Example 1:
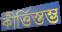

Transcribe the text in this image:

কীর্ত্তিস্তম্ভ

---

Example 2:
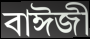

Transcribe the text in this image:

বাঈজী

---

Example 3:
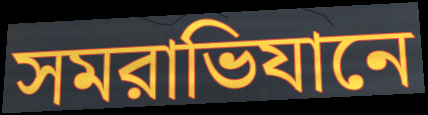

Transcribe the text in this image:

সমরাভিযানে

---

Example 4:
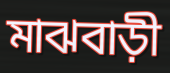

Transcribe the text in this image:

মাঝবাড়ী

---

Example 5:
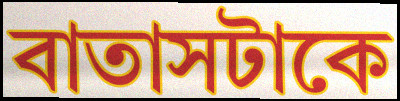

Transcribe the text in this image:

বাতাসটাকে